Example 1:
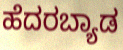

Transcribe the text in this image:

ಹೆದರಬ್ಯಾಡ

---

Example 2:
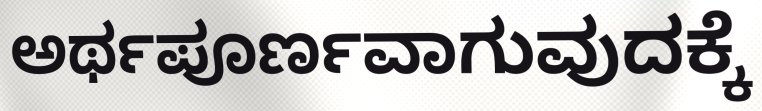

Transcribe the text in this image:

ಅರ್ಥಪೂರ್ಣವಾಗುವುದಕ್ಕೆ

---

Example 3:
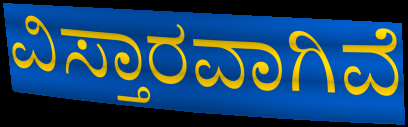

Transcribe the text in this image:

ವಿಸ್ತಾರವಾಗಿವೆ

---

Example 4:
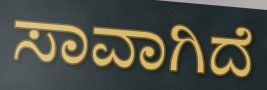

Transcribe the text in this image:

ಸಾವಾಗಿದೆ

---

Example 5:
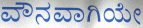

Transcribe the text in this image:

ವೌನವಾಗಿಯೇ